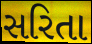
સરિતા